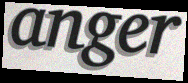
anger